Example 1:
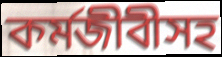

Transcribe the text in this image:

কর্মজীবীসহ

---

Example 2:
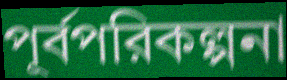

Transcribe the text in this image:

পূর্বপরিকল্পনা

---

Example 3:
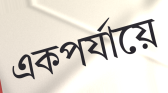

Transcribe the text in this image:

একপর্যায়ে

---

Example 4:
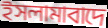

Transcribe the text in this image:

ইসলামাবাদে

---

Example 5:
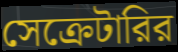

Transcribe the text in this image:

সেক্রেটারির